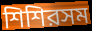
শিশিরসম